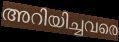
അറിയിച്ചവരെ